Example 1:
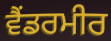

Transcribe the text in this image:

ਵੈਂਡਰਮੀਰ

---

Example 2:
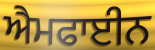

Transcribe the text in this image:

ਐਮਫਾਈਨ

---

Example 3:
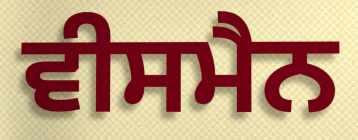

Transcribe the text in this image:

ਵੀਸਮੈਨ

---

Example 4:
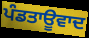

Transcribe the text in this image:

ਪੰਡਤਾਊਵਾਦ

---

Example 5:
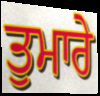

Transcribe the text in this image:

ਤੁਮਾਰੇ